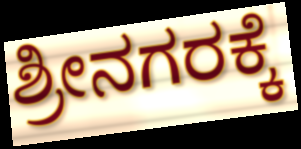
ಶ್ರೀನಗರಕ್ಕೆ